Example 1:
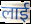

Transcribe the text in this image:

लाई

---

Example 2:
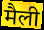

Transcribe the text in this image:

मैली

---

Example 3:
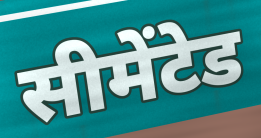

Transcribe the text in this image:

सीमेंटेड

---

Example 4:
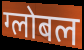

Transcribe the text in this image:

ग्लोबल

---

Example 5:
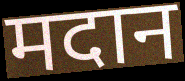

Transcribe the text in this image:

मदान